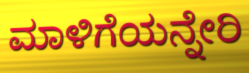
ಮಾಳಿಗೆಯನ್ನೇರಿ